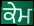
ਕੇਮ